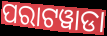
ପରାଟୱାଡା